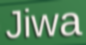
Jiwa